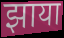
झाया